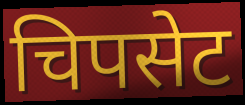
चिपसेट